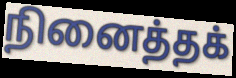
நினைத்தக்